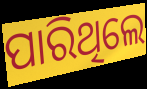
ପାରିଥିଲେ